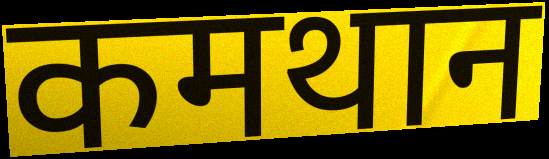
कमथान